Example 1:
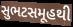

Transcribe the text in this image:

સુભટસમૂહથી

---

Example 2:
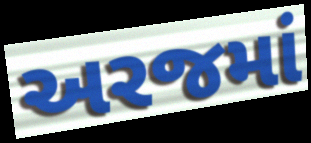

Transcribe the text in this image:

અરજમાં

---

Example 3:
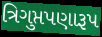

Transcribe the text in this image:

ત્રિગુપ્તપણારૂપ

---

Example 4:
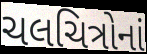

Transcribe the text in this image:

ચલચિત્રોનાં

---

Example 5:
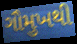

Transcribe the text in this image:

ગૌમુખથી